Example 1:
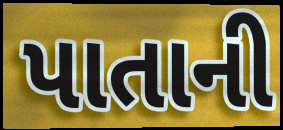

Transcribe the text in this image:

પાતાની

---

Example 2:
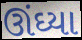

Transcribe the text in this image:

ઊંઘ્યા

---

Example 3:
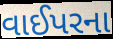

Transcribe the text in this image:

વાઈપરના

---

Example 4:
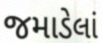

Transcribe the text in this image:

જમાડેલાં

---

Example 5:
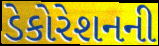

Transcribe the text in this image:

ડેકોરેશનની